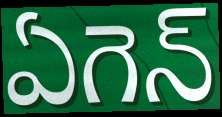
ఏగెన్